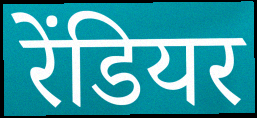
रेंडियर